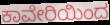
ಕಾವೇರಿಯಿಂದ